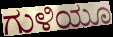
ಗುಳಿಯೂ